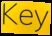
Key